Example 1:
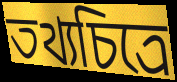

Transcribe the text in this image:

তথ্যচিত্রে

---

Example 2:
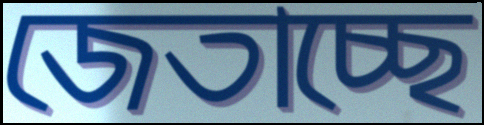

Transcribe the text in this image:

জেতাচ্ছে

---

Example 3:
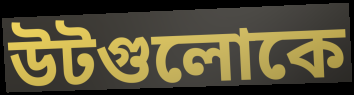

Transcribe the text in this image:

উটগুলোকে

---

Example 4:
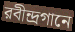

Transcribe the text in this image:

রবীন্দ্রগানে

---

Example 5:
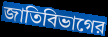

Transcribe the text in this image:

জাতিবিভাগের